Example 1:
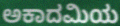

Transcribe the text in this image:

ಅಕಾದಮಿಯ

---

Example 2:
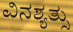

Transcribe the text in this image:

ವಿನಶ್ಯತ್ಸು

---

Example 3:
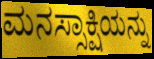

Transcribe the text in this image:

ಮನಸ್ಸಾಕ್ಷಿಯನ್ನು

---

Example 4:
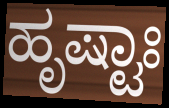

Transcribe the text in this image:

ಹೃಷ್ಟಾಃ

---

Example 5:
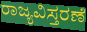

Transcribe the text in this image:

ರಾಜ್ಯವಿಸ್ತರಣೆ